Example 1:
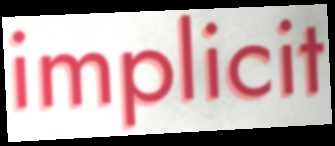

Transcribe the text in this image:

implicit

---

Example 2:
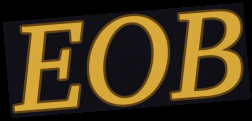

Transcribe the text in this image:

EOB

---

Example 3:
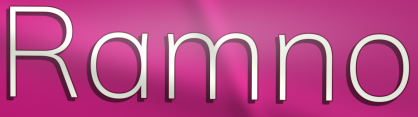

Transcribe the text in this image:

Ramno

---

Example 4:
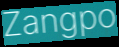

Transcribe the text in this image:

Zangpo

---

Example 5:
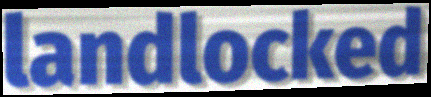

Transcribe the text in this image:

landlocked